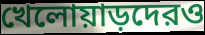
খেলোয়াড়দেরও